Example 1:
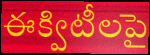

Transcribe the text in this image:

ఈక్విటీలపై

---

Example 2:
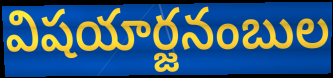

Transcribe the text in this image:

విషయార్జనంబుల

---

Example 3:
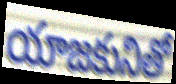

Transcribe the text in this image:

యాజకునితో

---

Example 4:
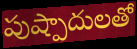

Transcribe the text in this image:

పుష్పాదులతో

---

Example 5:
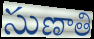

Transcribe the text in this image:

సుణాతి